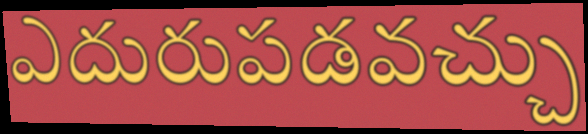
ఎదురుపడవచ్చు